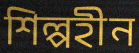
শিল্পহীন